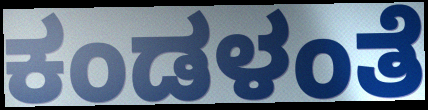
ಕಂಡಳಂತೆ